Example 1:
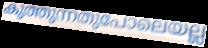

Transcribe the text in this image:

കുത്തുന്നതുപോലെയല്ല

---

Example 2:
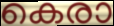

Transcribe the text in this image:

കെരാ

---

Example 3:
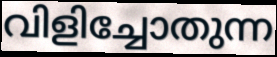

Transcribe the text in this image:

വിളിച്ചോതുന്ന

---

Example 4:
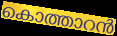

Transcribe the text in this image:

കൊത്താറൻ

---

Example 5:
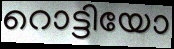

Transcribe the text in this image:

റൊട്ടിയോ